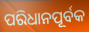
ପରିଧାନପୂର୍ବକ